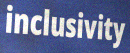
inclusivity